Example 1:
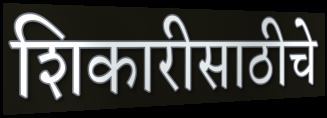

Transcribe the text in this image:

शिकारीसाठीचे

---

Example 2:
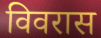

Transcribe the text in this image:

विवरास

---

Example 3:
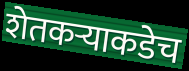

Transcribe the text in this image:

शेतकऱ्याकडेच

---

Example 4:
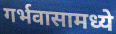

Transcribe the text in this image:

गर्भवासामध्ये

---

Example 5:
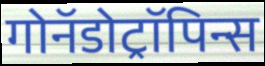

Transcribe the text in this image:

गोनॅडोट्रॉपिन्स